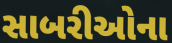
સાબરીઓના